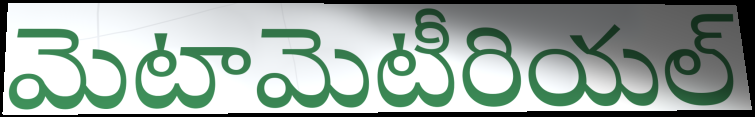
మెటామెటీరియల్